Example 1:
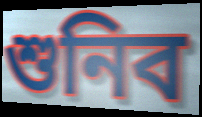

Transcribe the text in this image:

শুনিব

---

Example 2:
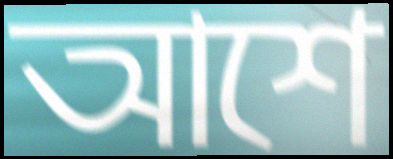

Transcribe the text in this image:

আশে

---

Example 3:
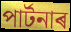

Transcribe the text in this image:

পাৰ্টনাৰ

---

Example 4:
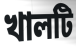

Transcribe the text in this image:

খালটি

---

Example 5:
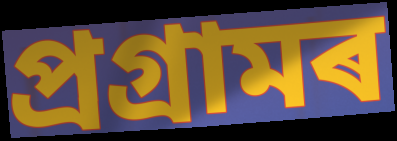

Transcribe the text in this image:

প্ৰগ্ৰামৰ